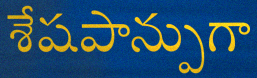
శేషపాన్పుగా